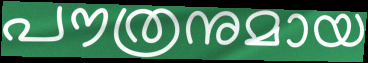
പൗത്രനുമായ